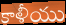
కాళీయు